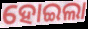
ହୋଇଲା